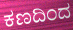
ಕಣದಿಂದ